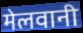
मेलवानी